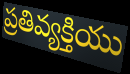
ప్రతివ్యక్తియు